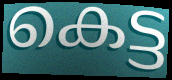
കെട്ട